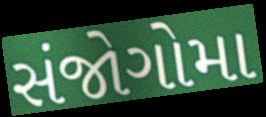
સંજોગોમા